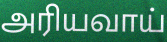
அரியவாய்